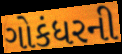
ગોકંધરની